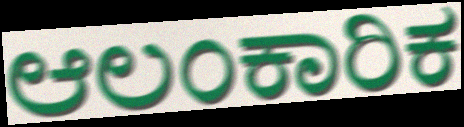
ಆಲಂಕಾರಿಕ